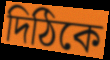
দিঠিকে